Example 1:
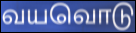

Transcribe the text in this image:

வயவொடு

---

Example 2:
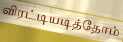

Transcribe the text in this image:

விரட்டியடித்தோம்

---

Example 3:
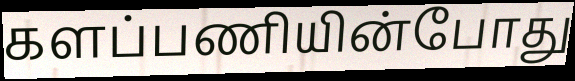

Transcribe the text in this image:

களப்பணியின்போது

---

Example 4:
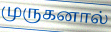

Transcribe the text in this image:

முருகனால்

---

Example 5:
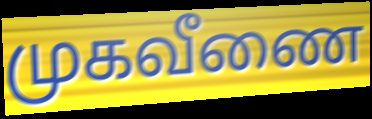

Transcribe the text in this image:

முகவீணை